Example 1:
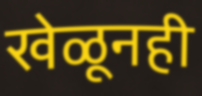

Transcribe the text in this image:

खेळूनही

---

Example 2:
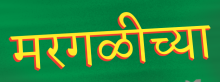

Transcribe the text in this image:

मरगळीच्या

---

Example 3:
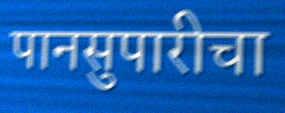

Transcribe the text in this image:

पानसुपारीचा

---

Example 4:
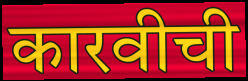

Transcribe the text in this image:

कारवीची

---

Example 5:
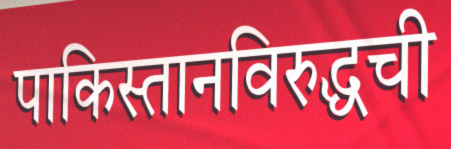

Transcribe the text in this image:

पाकिस्तानविरुद्धची